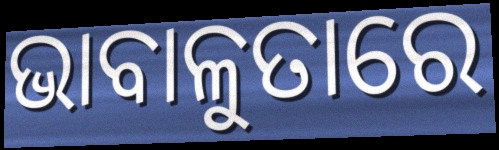
ଭାବାଳୁତାରେ